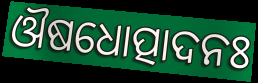
ଔଷଧୋତ୍ପାଦନଃ